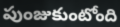
పుంజుకుంటోంది